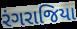
રંગરાજિયા